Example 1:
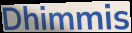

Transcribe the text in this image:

Dhimmis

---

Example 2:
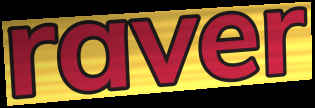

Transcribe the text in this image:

raver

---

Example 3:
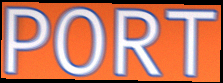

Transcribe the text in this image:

PORT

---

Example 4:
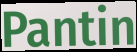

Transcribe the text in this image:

Pantin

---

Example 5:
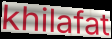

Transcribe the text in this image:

khilafat